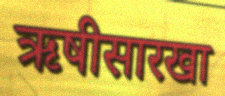
ऋषीसारखा